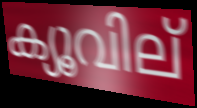
ക്യൂവില്